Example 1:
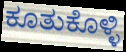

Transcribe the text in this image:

ಕೂತುಕೊಳ್ಳಿ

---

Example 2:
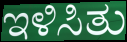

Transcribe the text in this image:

ಇಳಿಸಿತು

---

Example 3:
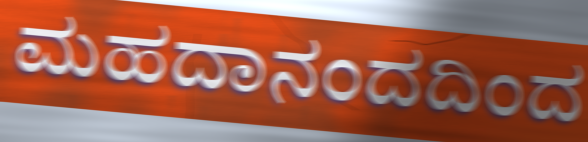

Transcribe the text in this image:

ಮಹದಾನಂದದಿಂದ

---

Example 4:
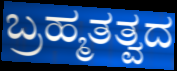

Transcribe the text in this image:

ಬ್ರಹ್ಮತತ್ವದ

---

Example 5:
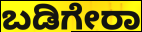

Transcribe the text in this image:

ಬಡಿಗೇರಾ